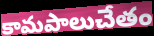
కామపాలుచేతం